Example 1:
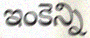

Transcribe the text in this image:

ఇంకెన్ని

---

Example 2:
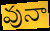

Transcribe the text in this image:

వునా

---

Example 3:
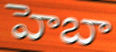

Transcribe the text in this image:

హెబా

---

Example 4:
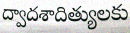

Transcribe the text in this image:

ద్వాదశాదిత్యులకు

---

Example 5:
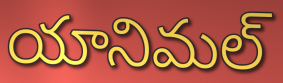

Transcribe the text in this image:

యానిమల్